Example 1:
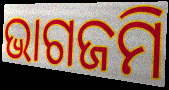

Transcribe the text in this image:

ଭାଗଜମି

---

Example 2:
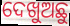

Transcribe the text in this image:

ଦେଖୁଅଛୁ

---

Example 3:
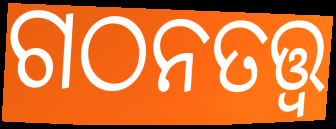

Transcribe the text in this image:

ଗଠନତତ୍ତ୍ୱ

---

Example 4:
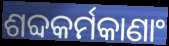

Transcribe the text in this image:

ଶବ୍ଦକର୍ମକାଣାଂ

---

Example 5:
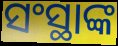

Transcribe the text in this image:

ସଂସ୍ଥାଙ୍କ